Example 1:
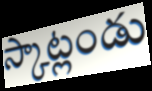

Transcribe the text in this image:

స్కాట్లండు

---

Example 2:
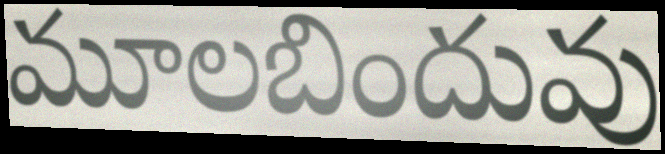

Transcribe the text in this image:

మూలబిందువు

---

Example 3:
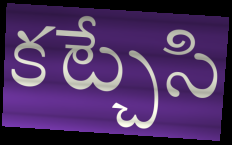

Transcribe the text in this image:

కట్చేసి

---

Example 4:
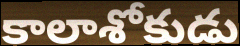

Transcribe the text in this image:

కాలాశోకుడు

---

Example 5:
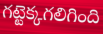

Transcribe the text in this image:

గట్టెక్కగలిగింది